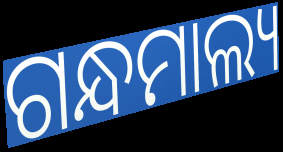
ଗନ୍ଧମାଲ୍ୟ